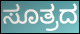
ಸೂತ್ರದ